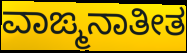
ವಾಙ್ಮನಾತೀತ